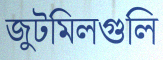
জুটমিলগুলি